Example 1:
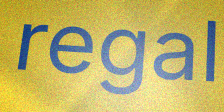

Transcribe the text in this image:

regal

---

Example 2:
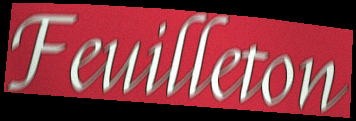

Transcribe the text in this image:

Feuilleton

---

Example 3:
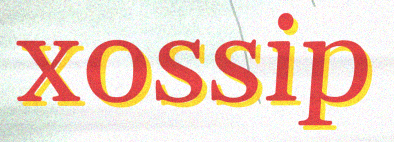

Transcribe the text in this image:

xossip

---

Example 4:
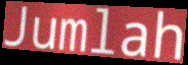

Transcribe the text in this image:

Jumlah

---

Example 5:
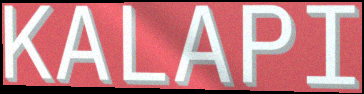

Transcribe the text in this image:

KALAPI